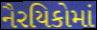
નૈરયિકોમાં